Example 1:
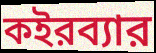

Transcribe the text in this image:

কইরব্যার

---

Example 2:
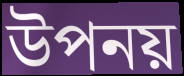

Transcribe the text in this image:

উপনয়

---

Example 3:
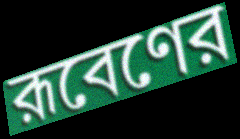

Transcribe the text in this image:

রূবেণের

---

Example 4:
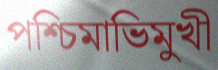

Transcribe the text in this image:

পশ্চিমাভিমুখী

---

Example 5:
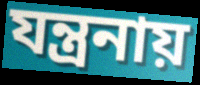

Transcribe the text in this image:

যন্ত্রনায়